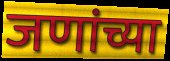
जणांच्या